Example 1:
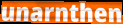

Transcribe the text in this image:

unarnthen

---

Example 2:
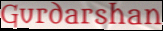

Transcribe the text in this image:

Gurdarshan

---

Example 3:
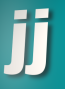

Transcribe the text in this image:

jj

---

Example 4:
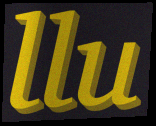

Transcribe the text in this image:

llu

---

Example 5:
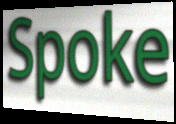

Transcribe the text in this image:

Spoke